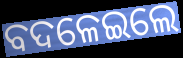
ବଦଳେଇଲେ